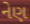
નેણ